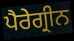
ਪੈਰੇਗ੍ਰੀਨ